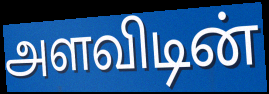
அளவிடின்